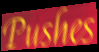
Pushes